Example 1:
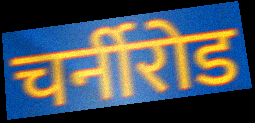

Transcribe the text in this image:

चर्नीरोड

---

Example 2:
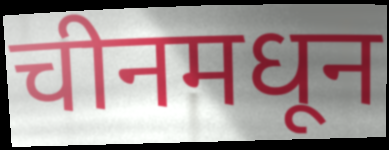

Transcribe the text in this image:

चीनमधून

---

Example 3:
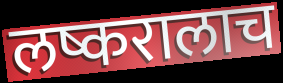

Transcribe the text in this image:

लष्करालाच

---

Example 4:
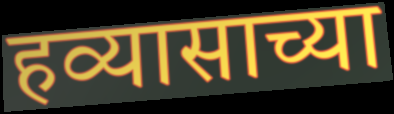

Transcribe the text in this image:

हव्यासाच्या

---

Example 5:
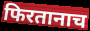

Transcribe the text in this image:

फिरतानाच